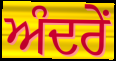
ਅੰਦਰੇਂ